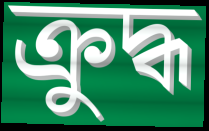
ক্ৰুদ্ধ